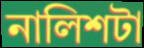
নালিশটা